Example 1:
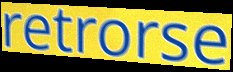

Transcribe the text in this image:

retrorse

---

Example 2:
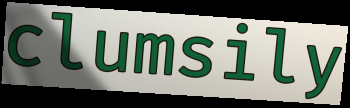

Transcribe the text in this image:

clumsily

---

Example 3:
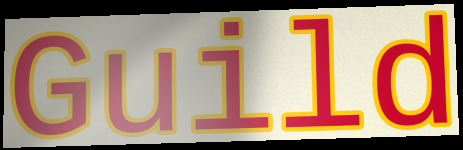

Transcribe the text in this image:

Guild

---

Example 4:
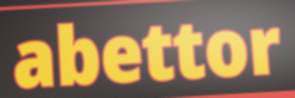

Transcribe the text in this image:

abettor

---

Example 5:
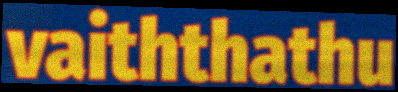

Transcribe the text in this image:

vaiththathu